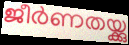
ജീർണതയ്ക്കു